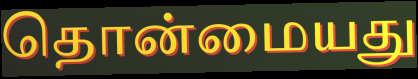
தொன்மையது